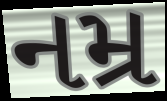
નમ્ર